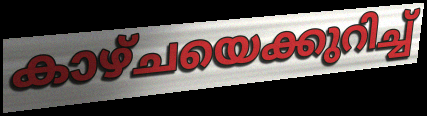
കാഴ്ചയെക്കുറിച്ച്